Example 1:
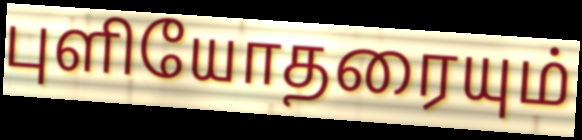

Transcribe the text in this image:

புளியோதரையும்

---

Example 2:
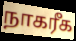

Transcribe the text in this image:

நாகரீக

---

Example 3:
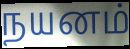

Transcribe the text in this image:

நயனம்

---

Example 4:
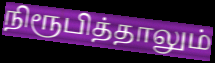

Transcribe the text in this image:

நிரூபித்தாலும்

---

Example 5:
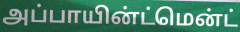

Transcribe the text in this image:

அப்பாயின்ட்மென்ட்